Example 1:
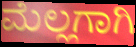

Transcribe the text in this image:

ಮೆಲ್ಲಗಾಗಿ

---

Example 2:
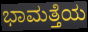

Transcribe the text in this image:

ಭಾಮತ್ತೆಯ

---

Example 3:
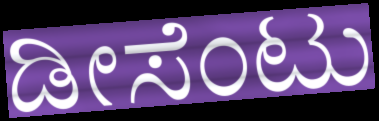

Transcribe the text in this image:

ಡೀಸೆಂಟು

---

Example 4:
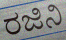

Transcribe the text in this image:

ರಜಿನಿ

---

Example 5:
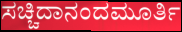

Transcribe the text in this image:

ಸಚ್ಚಿದಾನಂದಮೂರ್ತಿ